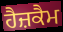
ਹੈਜ਼ਕੈਮ